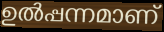
ഉൽപ്പന്നമാണ്